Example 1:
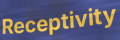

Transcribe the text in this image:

Receptivity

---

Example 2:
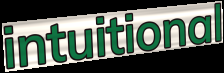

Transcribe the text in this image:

intuitional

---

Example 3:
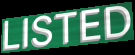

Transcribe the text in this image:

LISTED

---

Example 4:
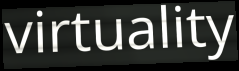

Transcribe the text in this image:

virtuality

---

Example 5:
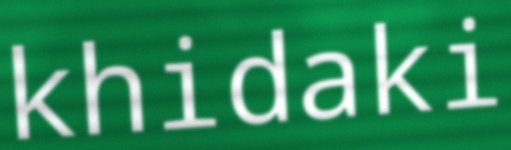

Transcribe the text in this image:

khidaki